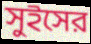
সুইসের